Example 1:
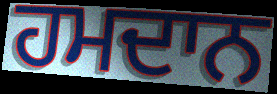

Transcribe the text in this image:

ਹਮਦਾਨ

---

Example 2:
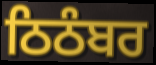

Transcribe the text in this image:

ਠਿਠੰਬਰ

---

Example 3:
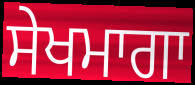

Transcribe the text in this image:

ਸੇਖਮਾਗਾ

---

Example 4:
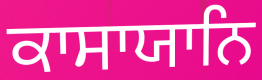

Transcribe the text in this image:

ਕਾਸਾਯਾਨਿ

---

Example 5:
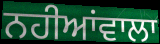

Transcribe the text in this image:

ਨਹੀਆਂਵਾਲਾ